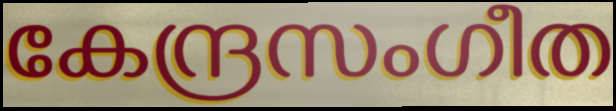
കേന്ദ്രസംഗീത